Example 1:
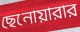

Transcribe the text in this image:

ছেনোয়ারার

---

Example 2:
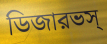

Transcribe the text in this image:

ডিজারভস্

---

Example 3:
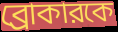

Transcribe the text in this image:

ব্রোকারকে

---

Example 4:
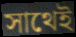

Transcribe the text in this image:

সাথেই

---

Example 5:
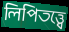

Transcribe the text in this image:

লিপিতত্ত্বে